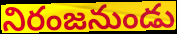
నిరంజనుండు